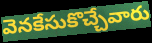
వెనకేసుకొచ్చేవారు